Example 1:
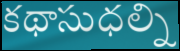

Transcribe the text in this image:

కథాసుధల్ని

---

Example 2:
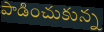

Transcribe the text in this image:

పాడించుకున్న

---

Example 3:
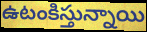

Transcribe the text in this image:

ఉటంకిస్తున్నాయి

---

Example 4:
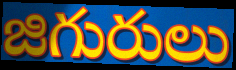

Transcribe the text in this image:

జిగురులు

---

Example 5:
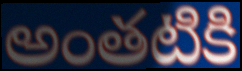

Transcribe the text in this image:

అంతటికి